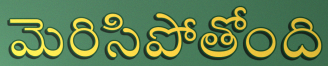
మెరిసిపోతోంది